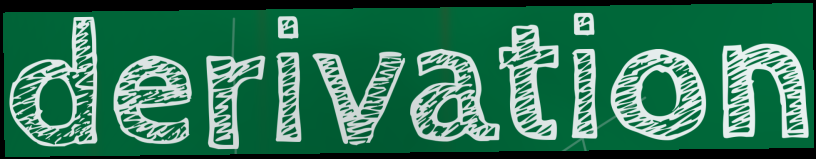
derivation